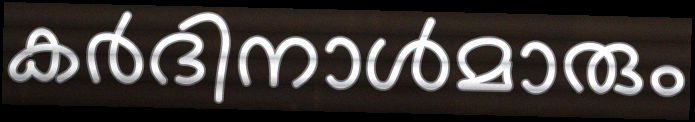
കർദിനാൾമാരും